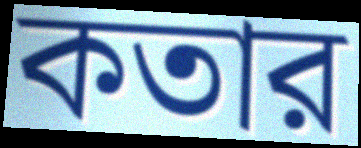
কতার